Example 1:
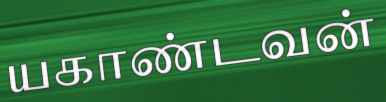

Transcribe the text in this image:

யகாண்டவன்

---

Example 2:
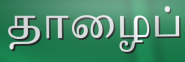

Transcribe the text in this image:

தாழைப்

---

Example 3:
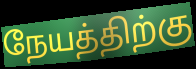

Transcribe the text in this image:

நேயத்திற்கு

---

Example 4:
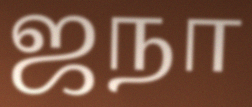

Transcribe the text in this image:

ஜநா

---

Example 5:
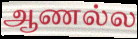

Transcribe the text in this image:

ஆணல்ல